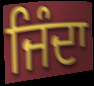
ਜਿੰਦਾ